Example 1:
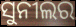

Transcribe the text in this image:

ସୁନୀଲର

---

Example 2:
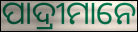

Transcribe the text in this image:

ପାଦ୍ରୀମାନେ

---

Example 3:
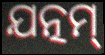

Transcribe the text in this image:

ଯତ୍ନମ୍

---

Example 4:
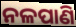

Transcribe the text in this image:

ନଳପାଣି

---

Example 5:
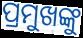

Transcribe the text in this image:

ପ୍ରମୁଖଙ୍କୁ